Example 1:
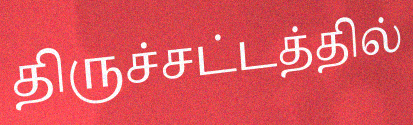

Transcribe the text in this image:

திருச்சட்டத்தில்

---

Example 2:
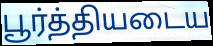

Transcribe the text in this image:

பூர்த்தியடைய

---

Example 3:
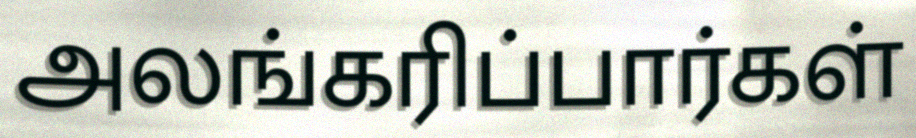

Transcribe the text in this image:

அலங்கரிப்பார்கள்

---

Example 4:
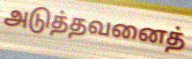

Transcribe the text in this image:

அடுத்தவனைத்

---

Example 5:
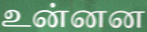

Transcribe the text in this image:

உன்னன